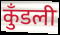
कुँडली